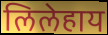
लिलेहाय